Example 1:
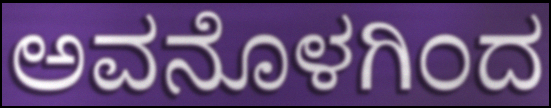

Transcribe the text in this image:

ಅವನೊಳಗಿಂದ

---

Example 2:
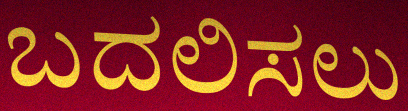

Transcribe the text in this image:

ಬದಲಿಸಲು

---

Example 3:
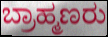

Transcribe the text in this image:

ಬ್ರಾಹ್ಮಣರು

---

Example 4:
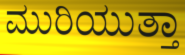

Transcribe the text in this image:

ಮುರಿಯುತ್ತಾ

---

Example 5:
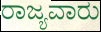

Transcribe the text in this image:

ರಾಜ್ಯವಾರು